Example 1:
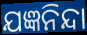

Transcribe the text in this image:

ଯଜ୍ଞନିନ୍ଦା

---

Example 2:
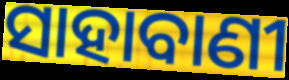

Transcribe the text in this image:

ସାହାବାଣୀ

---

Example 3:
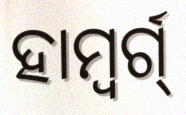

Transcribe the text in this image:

ହାମ୍ବର୍ଗ୍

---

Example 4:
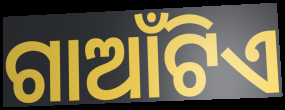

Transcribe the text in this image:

ଗାଆଁଟିଏ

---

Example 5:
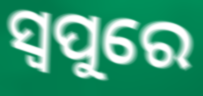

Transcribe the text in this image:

ସ୍ୱପୁରେ